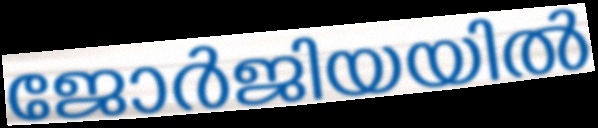
ജോർജിയയിൽ